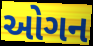
ઓગન